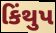
કિંથુપ